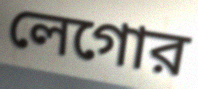
লেগোর